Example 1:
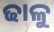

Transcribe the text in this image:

ଢାଳୁ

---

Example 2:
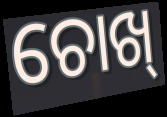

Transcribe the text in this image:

ଚୋଖ୍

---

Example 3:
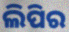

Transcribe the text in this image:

ଲିପିର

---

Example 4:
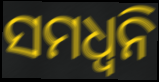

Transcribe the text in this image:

ସମଧ୍ୱନି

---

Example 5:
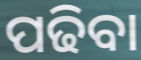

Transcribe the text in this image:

ପଢିବା